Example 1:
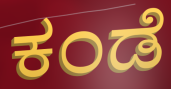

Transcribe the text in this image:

ಕಂಡೆ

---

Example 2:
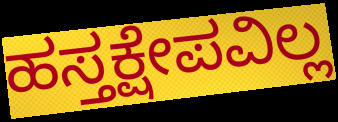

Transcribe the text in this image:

ಹಸ್ತಕ್ಷೇಪವಿಲ್ಲ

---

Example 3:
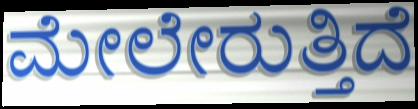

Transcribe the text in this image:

ಮೇಲೇರುತ್ತಿದೆ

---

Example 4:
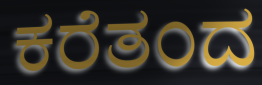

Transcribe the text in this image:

ಕರೆತಂದ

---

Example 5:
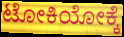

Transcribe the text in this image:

ಟೋಕಿಯೋಕ್ಕೆ